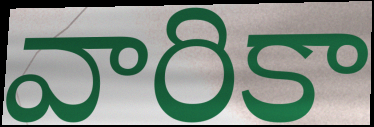
వారికా